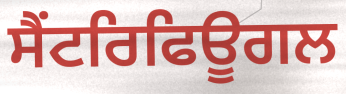
ਸੈਂਟਰਿਫਿਊਗਲ